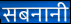
सबनानी